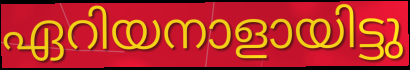
ഏറിയനാളായിട്ടു